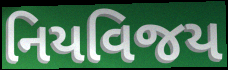
નિયવિજય